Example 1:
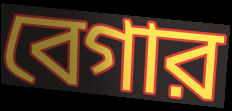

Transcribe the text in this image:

বেগার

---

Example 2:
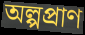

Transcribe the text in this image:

অল্পপ্রাণ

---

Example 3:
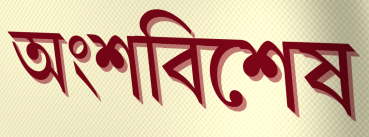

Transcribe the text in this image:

অংশবিশেষ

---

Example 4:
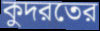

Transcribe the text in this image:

কুদরতের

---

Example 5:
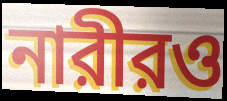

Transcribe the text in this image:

নারীরও